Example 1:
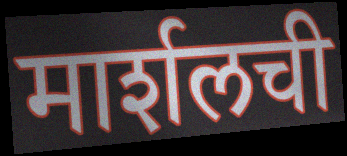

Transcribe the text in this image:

मार्शलची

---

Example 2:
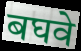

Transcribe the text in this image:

बघवे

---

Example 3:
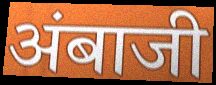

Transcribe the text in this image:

अंबाजी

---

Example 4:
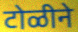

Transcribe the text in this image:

टोळीने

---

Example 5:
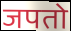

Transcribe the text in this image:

जपतो